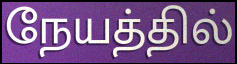
நேயத்தில்